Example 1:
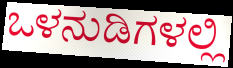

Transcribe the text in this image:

ಒಳನುಡಿಗಳಲ್ಲಿ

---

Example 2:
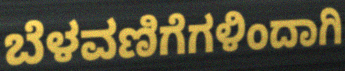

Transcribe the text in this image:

ಬೆಳವಣಿಗೆಗಳಿಂದಾಗಿ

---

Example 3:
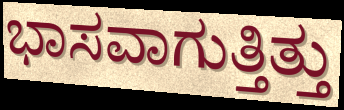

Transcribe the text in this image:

ಭಾಸವಾಗುತ್ತಿತ್ತು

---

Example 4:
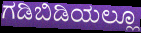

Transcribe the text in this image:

ಗಡಿಬಿಡಿಯಲ್ಲೂ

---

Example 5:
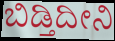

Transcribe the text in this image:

ಬಿಡ್ತಿದೀನಿ